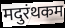
मदुरंथकम